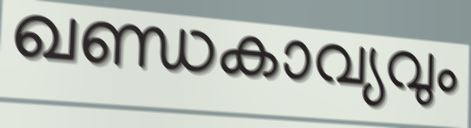
ഖണ്ഡകാവ്യവും